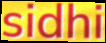
sidhi